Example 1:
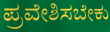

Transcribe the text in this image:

ಪ್ರವೇಶಿಸಬೇಕು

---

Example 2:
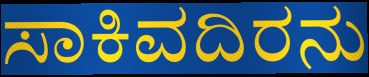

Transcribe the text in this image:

ಸಾಕಿವದಿರನು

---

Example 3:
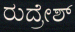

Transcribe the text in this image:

ರುದ್ರೇಶ್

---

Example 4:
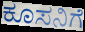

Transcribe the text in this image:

ಕೂಸನಿಗೆ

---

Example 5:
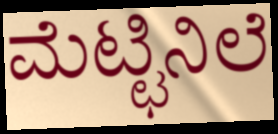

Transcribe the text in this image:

ಮೆಟ್ಟಿನಿಲೆ